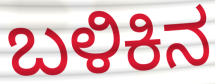
ಬಳಿಕಿನ